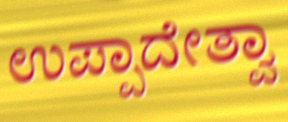
ಉಪ್ಪಾದೇತ್ವಾ